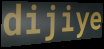
dijiye